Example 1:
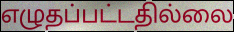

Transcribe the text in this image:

எழுதப்பட்டதில்லை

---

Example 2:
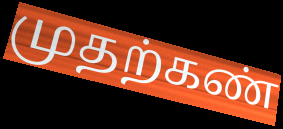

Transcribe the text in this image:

முதற்கண்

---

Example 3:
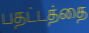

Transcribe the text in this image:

பதட்டத்தை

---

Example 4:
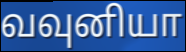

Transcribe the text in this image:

வவுனியா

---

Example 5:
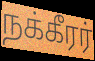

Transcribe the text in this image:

நக்கீரர்